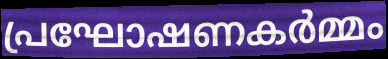
പ്രഘോഷണകർമ്മം